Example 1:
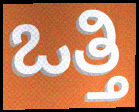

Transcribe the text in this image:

ಒತ್ತಿ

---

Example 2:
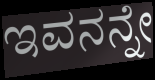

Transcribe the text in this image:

ಇವನನ್ನೇ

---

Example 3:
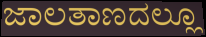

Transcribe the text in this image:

ಜಾಲತಾಣದಲ್ಲೂ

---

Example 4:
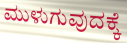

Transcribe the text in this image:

ಮುಳುಗುವುದಕ್ಕೆ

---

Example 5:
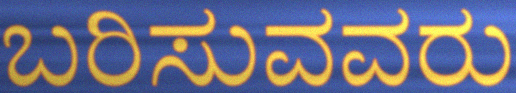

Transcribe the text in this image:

ಬರಿಸುವವರು